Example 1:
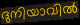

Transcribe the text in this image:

ദുനിയാവിൽ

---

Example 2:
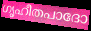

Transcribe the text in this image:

ഗൃഹീതപാദോ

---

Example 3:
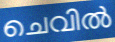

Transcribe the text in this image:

ചെവിൽ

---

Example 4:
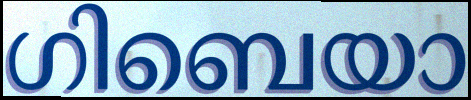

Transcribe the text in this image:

ഗിബെയാ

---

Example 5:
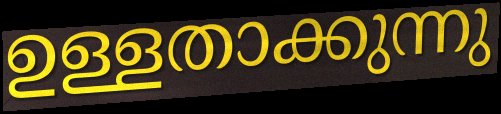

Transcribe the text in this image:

ഉള്ളതാക്കുന്നു